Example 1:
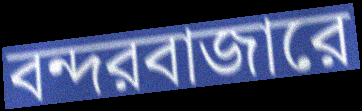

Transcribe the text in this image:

বন্দরবাজারে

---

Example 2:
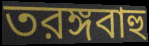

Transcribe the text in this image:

তরঙ্গবাহু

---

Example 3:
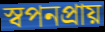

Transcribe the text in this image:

স্বপনপ্রায়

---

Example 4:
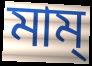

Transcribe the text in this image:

মাম্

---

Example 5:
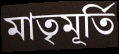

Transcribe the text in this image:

মাতৃমূর্তি